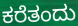
ಕರೆತಂದು